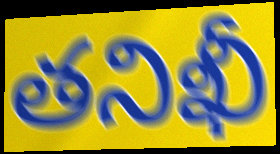
తనిఖీ